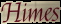
Himes